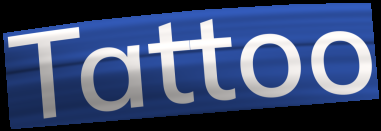
Tattoo